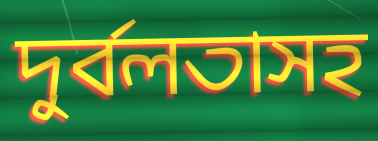
দুর্বলতাসহ